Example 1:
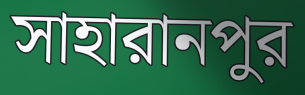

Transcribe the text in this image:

সাহারানপুর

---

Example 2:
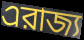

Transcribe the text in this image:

এরাজ্য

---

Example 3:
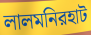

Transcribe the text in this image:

লালমনিরহাট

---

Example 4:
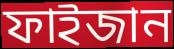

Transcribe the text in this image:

ফাইজান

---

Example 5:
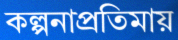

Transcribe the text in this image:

কল্পনাপ্রতিমায়